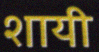
शायी